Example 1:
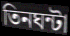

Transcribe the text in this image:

তিনঘন্টা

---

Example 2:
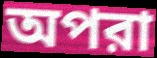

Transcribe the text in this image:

অপরা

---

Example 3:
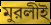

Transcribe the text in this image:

মুরলীই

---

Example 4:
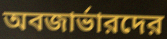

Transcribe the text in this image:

অবজার্ভারদের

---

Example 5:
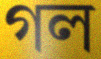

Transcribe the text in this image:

গল